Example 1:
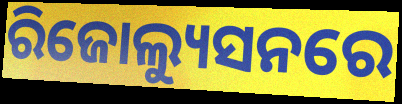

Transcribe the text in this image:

ରିଜୋଲ୍ୟୁସନରେ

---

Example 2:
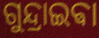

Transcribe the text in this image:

ଗୁନ୍ଦ୍ରାଇଵା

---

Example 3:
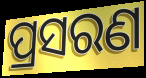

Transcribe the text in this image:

ପ୍ରସରଣ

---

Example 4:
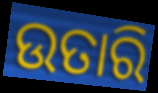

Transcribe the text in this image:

ଉତାରି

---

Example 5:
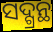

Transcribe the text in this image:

ସଦ୍ଗ୍ରନ୍ଥ